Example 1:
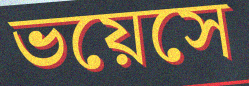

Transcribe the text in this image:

ভয়েসে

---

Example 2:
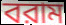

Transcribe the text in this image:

বরাম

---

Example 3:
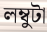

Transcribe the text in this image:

লম্বুটা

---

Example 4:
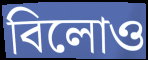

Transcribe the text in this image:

বিলোও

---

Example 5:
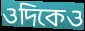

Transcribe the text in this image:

ওদিকেও